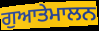
ਗੁਆਤੇਮਾਲਨ